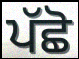
ਪੱਛੋ